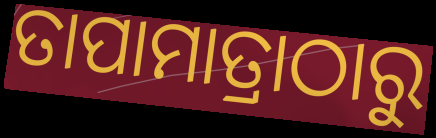
ତାପାମାତ୍ରାଠାରୁ